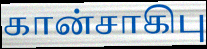
கான்சாகிபு